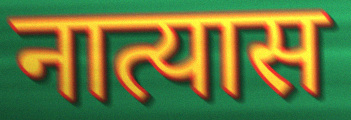
नात्यास